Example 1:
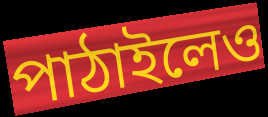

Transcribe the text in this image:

পাঠাইলেও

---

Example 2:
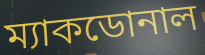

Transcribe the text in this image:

ম্যাকডোনাল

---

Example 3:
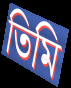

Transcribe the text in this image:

তিমি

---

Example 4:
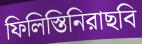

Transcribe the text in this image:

ফিলিস্তিনিরাছবি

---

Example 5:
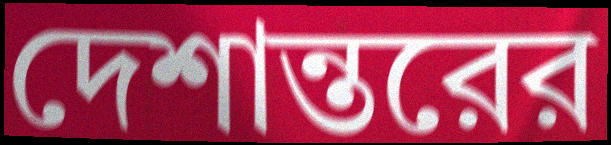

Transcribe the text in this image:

দেশান্তরের